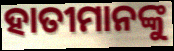
ହାତୀମାନଙ୍କୁ